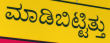
ಮಾಡಿಬಿಟ್ಟಿತ್ತು